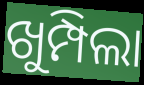
ଖୁମ୍ପିଲା